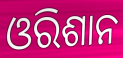
ଓରିଶାନ